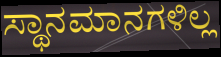
ಸ್ಥಾನಮಾನಗಳಿಲ್ಲ